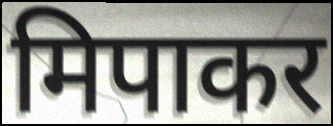
मिपाकर